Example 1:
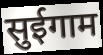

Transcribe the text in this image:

सुईगाम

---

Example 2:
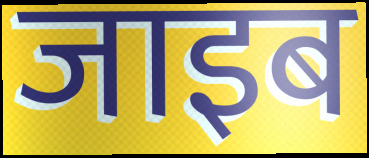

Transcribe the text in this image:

जाइब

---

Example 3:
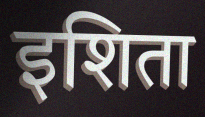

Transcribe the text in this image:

इशिता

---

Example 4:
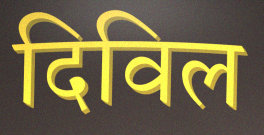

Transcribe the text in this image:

दिविल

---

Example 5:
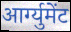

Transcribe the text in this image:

आर्ग्युमेंट